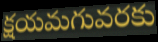
క్షయమగువరకు